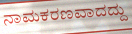
ನಾಮಕರಣವಾದದ್ದು